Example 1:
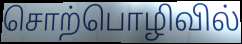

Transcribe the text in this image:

சொற்பொழிவில்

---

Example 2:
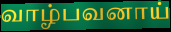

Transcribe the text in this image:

வாழ்பவனாய்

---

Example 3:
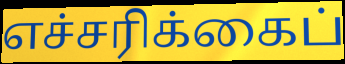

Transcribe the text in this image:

எச்சரிக்கைப்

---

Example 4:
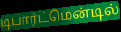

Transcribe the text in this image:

டிபார்ட்மென்டில்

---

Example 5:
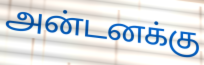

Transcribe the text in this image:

அன்டனக்கு